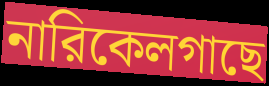
নারিকেলগাছে